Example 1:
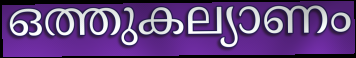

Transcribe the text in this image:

ഒത്തുകല്യാണം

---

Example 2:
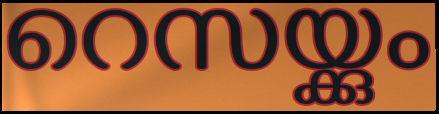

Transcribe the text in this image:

റെസയ്ക്കും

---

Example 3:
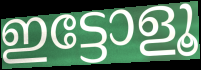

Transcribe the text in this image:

ഇട്ടോളൂ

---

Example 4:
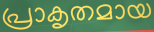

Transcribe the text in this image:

പ്രാകൃതമായ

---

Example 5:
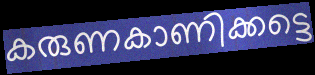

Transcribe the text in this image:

കരുണകാണിക്കട്ടെ